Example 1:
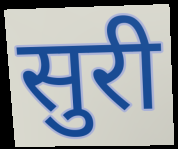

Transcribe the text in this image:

सुरी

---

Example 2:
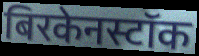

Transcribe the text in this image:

बिरकेनस्टॉक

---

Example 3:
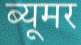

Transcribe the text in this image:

ब्यूमर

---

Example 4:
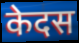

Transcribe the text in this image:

केदस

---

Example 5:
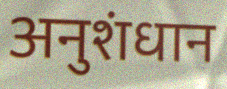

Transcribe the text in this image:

अनुशंधान